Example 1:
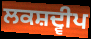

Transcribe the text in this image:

ਲਕਸ਼ਦ੍ਵੀਪ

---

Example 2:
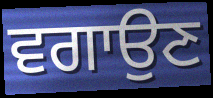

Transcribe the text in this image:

ਵਗਾਉਣ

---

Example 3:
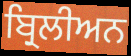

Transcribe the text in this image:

ਬ੍ਰਿਲੀਅਨ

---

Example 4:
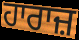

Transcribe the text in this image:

ਹਾਰਾਜ਼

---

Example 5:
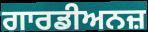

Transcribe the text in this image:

ਗਾਰਡੀਅਨਜ਼